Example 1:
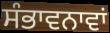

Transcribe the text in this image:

ਸੰਭਾਵਨਾਵਾਂ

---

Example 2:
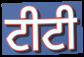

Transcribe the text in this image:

ਟੀਟੀ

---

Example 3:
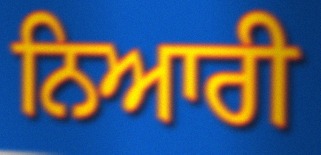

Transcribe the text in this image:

ਨਿਆਰੀ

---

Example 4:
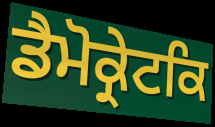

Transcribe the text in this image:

ਡੈਮੋਕ੍ਰੇਟਕਿ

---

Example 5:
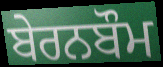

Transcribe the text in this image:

ਬੇਰਨਬੌਮ